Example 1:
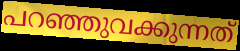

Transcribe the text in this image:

പറഞ്ഞുവക്കുന്നത്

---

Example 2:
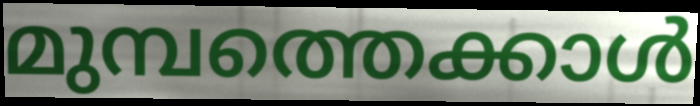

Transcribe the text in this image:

മുമ്പത്തെക്കാൾ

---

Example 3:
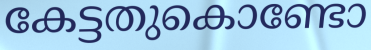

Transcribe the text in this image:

കേട്ടതുകൊണ്ടോ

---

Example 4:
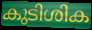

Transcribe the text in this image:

കുടിശിക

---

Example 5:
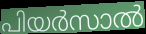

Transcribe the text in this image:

പിയർസാൽ